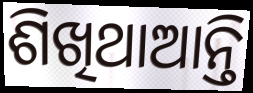
ଶିଖିଥାଆନ୍ତି